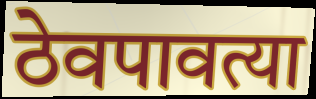
ठेवपावत्या